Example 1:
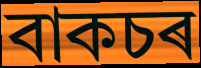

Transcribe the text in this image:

বাকচৰ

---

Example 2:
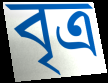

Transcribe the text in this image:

বৃত্ৰ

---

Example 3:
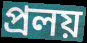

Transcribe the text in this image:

প্ৰলয়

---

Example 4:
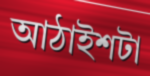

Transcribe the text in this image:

আঠাইশটা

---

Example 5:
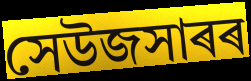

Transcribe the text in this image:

সেউজসাৰৰ